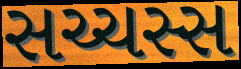
સચ્ચસ્સ